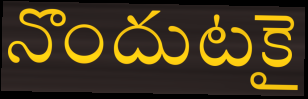
నొందుటకై